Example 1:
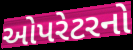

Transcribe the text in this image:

ઓપરેટરનો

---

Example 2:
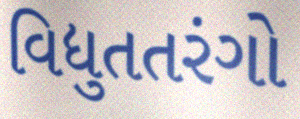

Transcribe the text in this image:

વિદ્યુતતરંગો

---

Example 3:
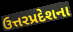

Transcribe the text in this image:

ઉત્તરપ્રદેશના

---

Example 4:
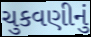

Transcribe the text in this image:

ચુકવણીનું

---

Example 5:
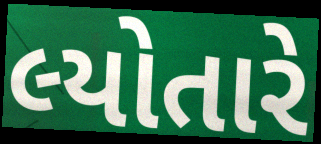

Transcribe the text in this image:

લ્યોતારે